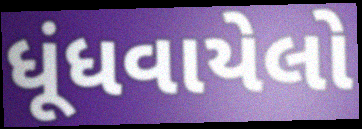
ધૂંધવાયેલો